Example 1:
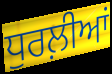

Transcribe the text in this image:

ਧੁਰਲ਼ੀਆਂ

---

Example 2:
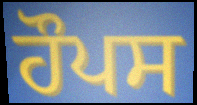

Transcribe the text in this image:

ਹੌਪਸ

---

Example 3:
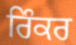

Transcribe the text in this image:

ਰਿੰਕਰ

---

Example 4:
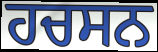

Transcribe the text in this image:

ਹਚਸਨ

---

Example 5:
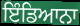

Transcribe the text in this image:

ਇੰਡਿਆਨਾ